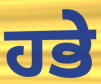
ਹਭੇ